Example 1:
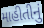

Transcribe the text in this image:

માહીતીનું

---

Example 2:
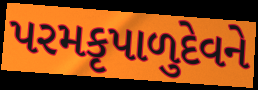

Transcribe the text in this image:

પરમકૃપાળુદેવને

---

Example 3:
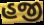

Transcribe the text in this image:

હજી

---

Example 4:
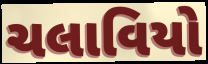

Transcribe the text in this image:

ચલાવિયો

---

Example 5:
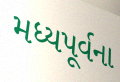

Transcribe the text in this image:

મધ્યપૂર્વના